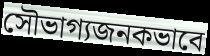
সৌভাগ্যজনকভাবে